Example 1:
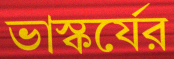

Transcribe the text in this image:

ভাস্কর্যের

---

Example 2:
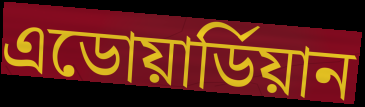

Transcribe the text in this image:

এডোয়ার্ডিয়ান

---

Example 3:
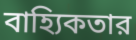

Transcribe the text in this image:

বাহ্যিকতার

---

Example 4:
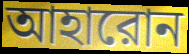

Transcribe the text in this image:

আহারোন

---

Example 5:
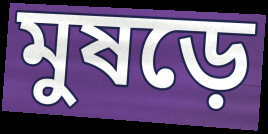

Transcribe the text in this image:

মুষড়ে